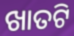
ଖାତଟି